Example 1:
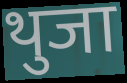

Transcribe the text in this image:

थुजा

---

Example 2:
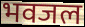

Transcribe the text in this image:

भवजल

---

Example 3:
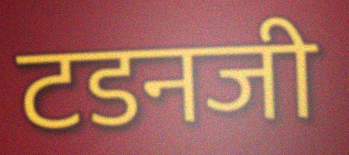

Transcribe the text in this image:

टडनजी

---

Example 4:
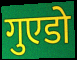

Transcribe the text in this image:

गुएडो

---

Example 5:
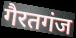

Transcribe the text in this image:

गैरतगंज